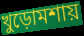
খুড়োমশায়